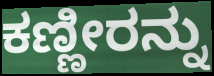
ಕಣ್ಣೀರನ್ನು